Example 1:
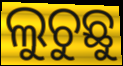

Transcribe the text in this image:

ଲୁଚୁଛୁ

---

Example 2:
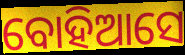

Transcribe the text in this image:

ବୋହିଆସେ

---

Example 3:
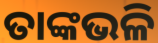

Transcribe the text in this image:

ତାଙ୍କଭଳି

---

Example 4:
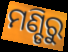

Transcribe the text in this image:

ମଣ୍ଡିରୁ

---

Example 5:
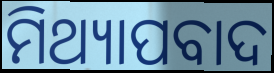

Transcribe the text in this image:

ମିଥ୍ୟାପବାଦ